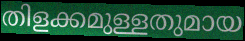
തിളക്കമുള്ളതുമായ